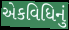
એકવિધિનું